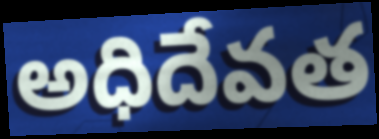
అధిదేవత